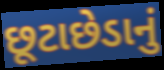
છૂટાછેડાનું